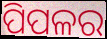
ପିପଳର